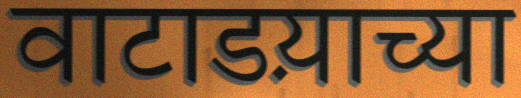
वाटाडय़ाच्या